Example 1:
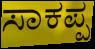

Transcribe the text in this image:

ಸಾಕಪ್ಪ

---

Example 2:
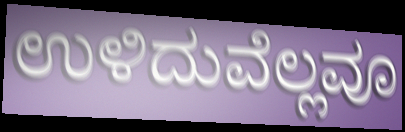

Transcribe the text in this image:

ಉಳಿದುವೆಲ್ಲವೂ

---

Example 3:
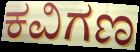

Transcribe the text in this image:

ಕವಿಗಣ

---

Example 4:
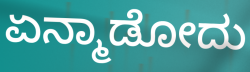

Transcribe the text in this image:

ಏನ್ಮಾಡೋದು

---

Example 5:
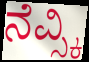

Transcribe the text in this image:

ನೆವ್ಸ್ಕಿ